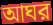
আঘর